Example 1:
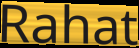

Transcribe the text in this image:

Rahat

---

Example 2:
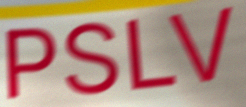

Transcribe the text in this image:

PSLV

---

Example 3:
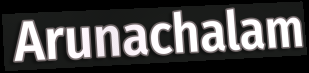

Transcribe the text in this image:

Arunachalam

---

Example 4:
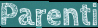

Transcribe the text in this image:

Parenti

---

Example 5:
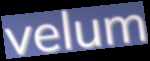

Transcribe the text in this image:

velum